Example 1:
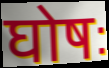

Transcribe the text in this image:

घोषः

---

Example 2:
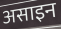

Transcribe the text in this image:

असाइन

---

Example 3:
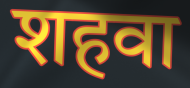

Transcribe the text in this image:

शहवा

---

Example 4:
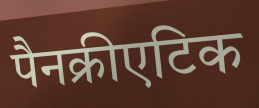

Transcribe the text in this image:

पैनक्रीएटिक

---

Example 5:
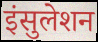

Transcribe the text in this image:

इंसुलेशन